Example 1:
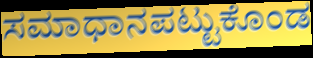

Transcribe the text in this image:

ಸಮಾಧಾನಪಟ್ಟುಕೊಂಡ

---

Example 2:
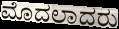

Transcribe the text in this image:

ಮೊದಲಾದರು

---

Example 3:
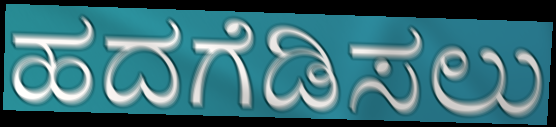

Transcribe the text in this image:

ಹದಗೆಡಿಸಲು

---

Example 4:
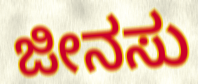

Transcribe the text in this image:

ಜೀನಸು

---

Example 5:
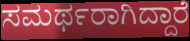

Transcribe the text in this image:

ಸಮರ್ಥರಾಗಿದ್ದಾರೆ